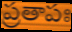
ప్రతాపః